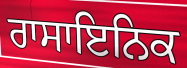
ਰਾਸਾਇਨਿਕ